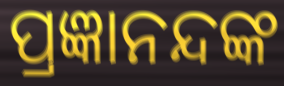
ପ୍ରଜ୍ଞାନନ୍ଦଙ୍କ